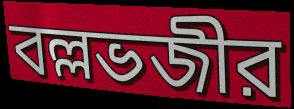
বল্লভজীর